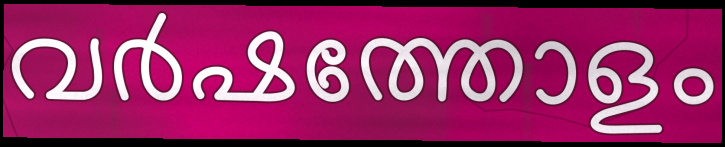
വർഷത്തോളം